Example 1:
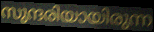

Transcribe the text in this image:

സുന്ദരിയായിരുന്ന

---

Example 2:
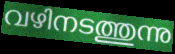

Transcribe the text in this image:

വഴിനടത്തുന്നു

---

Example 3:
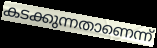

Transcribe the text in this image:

കടക്കുന്നതാണെന്ന്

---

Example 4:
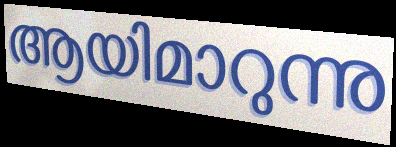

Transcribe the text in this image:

ആയിമാറുന്നു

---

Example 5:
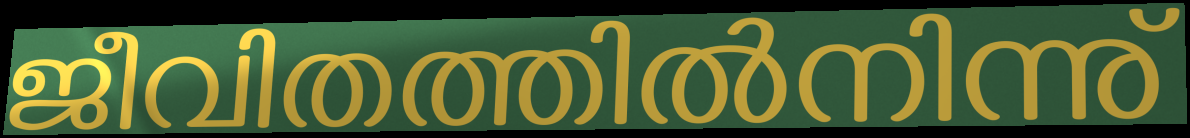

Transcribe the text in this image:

ജീവിതത്തിൽനിന്നു്